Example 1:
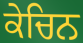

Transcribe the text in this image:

ਕੇਚਿਨ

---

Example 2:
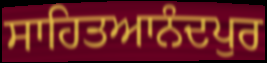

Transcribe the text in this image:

ਸਾਹਿਤਆਨੰਦਪੁਰ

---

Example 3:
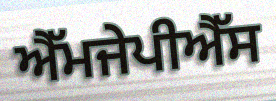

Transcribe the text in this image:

ਐੱਮਜੇਪੀਐੱਸ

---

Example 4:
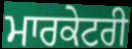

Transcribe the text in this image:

ਮਾਰਕੇਟਰੀ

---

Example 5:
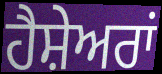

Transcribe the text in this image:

ਹੈਸ਼ੇਅਰਾਂ